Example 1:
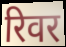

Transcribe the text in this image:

रिवर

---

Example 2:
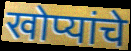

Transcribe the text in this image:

खोप्यांचे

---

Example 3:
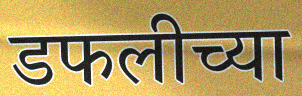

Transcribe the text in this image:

डफलीच्या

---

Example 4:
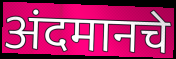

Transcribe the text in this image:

अंदमानचे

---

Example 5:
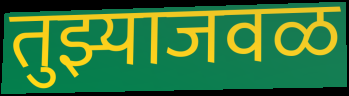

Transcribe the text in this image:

तुझ्याजवळ